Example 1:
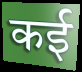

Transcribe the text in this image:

कई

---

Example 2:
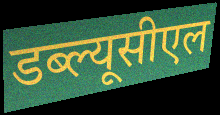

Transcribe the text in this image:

डब्ल्यूसीएल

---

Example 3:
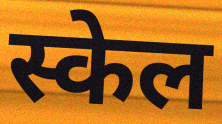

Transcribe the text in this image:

स्केल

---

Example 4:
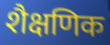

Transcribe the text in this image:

शैक्षणिक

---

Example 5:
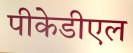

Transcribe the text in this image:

पीकेडीएल